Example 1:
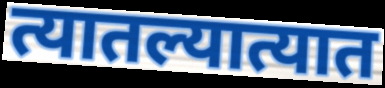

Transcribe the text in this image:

त्यातल्यात्यात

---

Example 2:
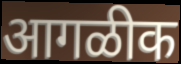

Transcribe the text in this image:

आगळीक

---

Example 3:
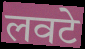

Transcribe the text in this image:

लवटे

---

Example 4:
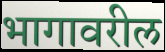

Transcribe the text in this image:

भागावरील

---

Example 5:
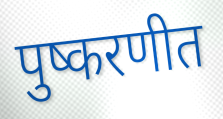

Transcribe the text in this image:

पुष्करणीत